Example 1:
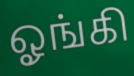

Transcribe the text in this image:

ஓங்கி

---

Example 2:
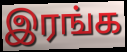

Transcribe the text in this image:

இரங்க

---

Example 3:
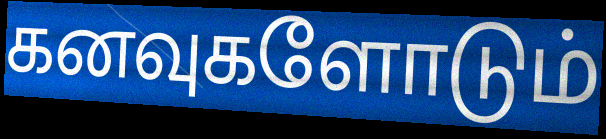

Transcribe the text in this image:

கனவுகளோடும்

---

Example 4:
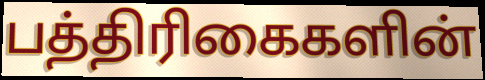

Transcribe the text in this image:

பத்திரிகைகளின்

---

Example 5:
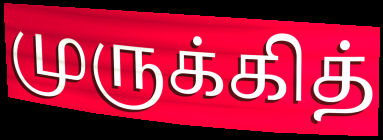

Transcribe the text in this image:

முருக்கித்